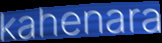
kahenara